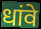
धांवे